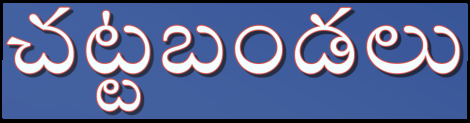
చట్టబండలు